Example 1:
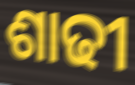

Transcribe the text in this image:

ଶାଢୀ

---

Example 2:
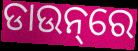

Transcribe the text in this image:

ଡାଉନ୍‌ରେ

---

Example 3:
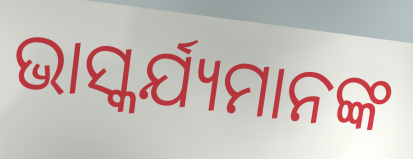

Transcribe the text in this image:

ଭାସ୍କର୍ଯ୍ୟମାନଙ୍କ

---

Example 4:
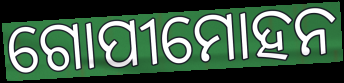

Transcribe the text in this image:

ଗୋପୀମୋହନ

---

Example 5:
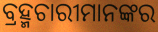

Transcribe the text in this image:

ବ୍ରହ୍ମଚାରୀମାନଙ୍କର